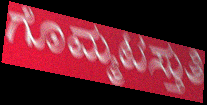
ಗೊಮ್ಮಟಸ್ತುತಿ